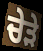
ਚੇੜੇ